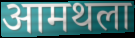
आमथला